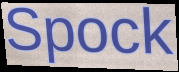
Spock